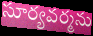
సూర్యవర్మను